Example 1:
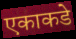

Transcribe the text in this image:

एकाकडे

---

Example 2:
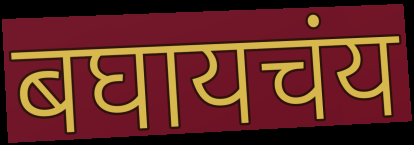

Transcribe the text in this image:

बघायचंय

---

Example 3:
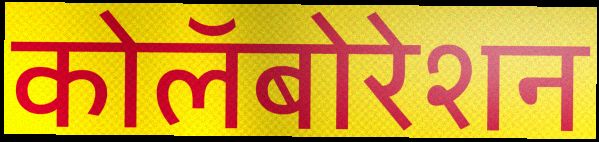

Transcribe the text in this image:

कोलॅबोरेशन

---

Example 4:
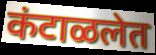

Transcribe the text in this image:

कंटाळलेत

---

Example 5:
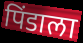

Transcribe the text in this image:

पिंडाला